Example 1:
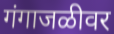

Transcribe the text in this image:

गंगाजळीवर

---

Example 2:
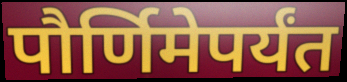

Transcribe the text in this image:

पौर्णिमेपर्यंत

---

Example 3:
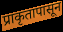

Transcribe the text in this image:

प्राकृतापासून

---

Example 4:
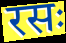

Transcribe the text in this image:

रसः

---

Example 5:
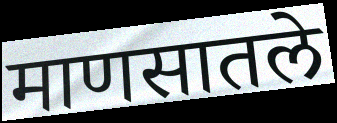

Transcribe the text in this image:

माणसातले